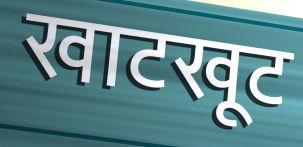
खाटखूट